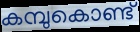
കമ്പുകൊണ്ട്